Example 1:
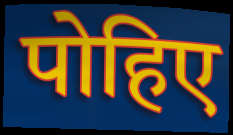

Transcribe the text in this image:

पोहिए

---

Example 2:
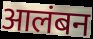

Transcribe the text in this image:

आलंबन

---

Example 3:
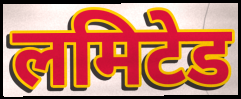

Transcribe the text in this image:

लमिटेड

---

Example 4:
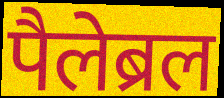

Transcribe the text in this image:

पैलेब्रल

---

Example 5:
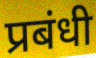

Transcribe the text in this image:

प्रबंधी